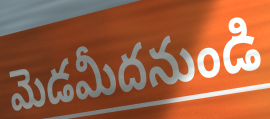
మెడమీదనుండి